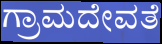
ಗ್ರಾಮದೇವತೆ